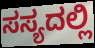
ಸಸ್ಯದಲ್ಲಿ